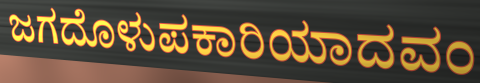
ಜಗದೊಳುಪಕಾರಿಯಾದವಂ